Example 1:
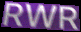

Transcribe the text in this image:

RWR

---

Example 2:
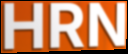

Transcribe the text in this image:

HRN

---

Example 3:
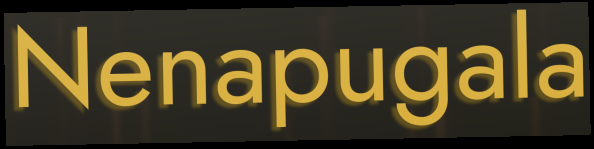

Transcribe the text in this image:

Nenapugala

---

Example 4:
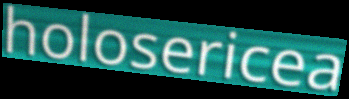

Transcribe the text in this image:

holosericea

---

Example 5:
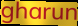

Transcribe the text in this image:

gharun